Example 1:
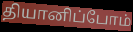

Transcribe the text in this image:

தியானிப்போம்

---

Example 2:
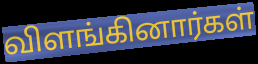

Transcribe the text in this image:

விளங்கினார்கள்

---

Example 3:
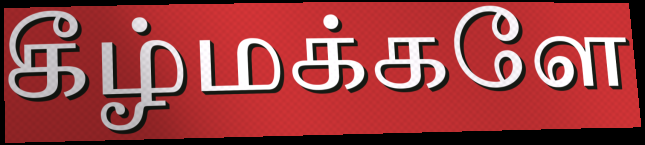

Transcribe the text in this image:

கீழ்மக்களே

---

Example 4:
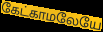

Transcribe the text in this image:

கேட்காமலேயே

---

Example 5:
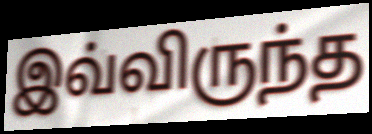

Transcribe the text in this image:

இவ்விருந்த